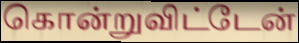
கொன்றுவிட்டேன்